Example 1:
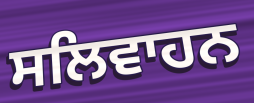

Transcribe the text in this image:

ਸਲਿਵਾਹਨ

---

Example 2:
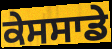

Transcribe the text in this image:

ਕੇਸਸਾਡੇ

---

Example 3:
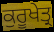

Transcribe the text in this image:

ਕੁਰੂਖੇਤ੍ਰ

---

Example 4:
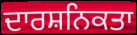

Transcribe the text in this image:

ਦਾਰਸ਼ਨਿਕਤਾ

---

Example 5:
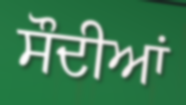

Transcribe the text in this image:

ਸੌਦੀਆਂ